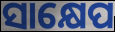
ସାକ୍ଷେପ